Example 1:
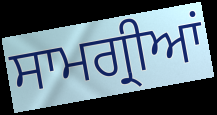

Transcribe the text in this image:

ਸਾਮਗ੍ਰੀਆਂ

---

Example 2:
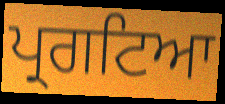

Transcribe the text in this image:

ਪ੍ਰਗਟਿਆ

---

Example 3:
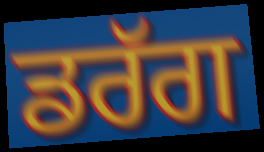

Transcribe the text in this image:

ਡਰੱਗ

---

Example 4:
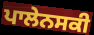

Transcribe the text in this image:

ਪਾਲੇਨਸਕੀ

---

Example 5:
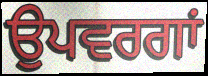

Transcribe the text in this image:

ਉਪਵਰਗਾਂ